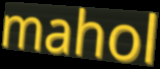
mahol